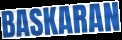
BASKARAN